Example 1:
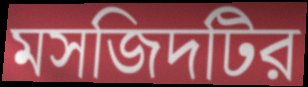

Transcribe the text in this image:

মসজিদটির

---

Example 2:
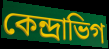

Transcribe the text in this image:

কেন্দ্রাভিগ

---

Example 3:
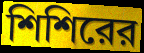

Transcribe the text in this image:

শিশিরের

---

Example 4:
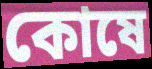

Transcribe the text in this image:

কোষে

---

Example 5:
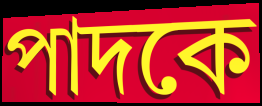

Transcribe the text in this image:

পাদকে